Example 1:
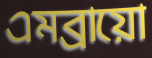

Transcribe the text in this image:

এমব্রায়ো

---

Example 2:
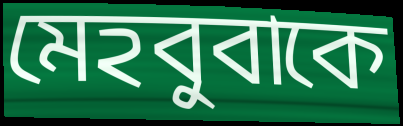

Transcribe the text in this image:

মেহবুবাকে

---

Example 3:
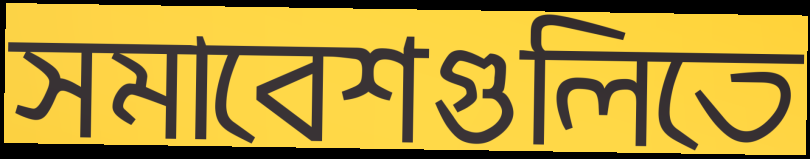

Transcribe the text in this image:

সমাবেশগুলিতে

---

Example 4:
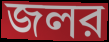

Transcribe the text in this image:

জলর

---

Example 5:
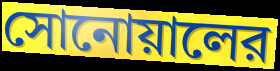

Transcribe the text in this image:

সোনোয়ালের